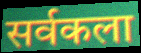
सर्वकला